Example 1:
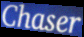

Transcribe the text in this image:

Chaser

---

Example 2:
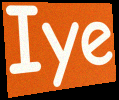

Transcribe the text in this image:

Iye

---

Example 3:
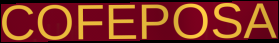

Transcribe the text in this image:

COFEPOSA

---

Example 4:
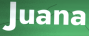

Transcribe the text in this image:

Juana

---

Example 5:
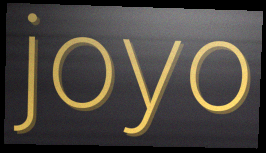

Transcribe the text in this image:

joyo